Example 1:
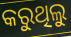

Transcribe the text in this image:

କରୁଥିଲୁ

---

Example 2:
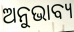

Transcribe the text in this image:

ଅନୁଭାବ୍ୟ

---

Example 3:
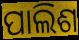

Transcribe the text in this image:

ପାଲିଶ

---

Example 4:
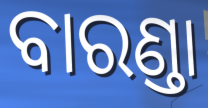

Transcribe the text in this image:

ବାରଣ୍ଡା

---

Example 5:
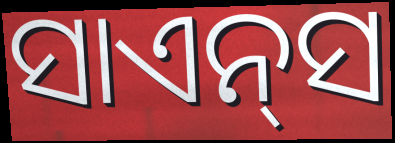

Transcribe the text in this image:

ସାଏନ୍‌ସ